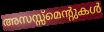
അസസ്സ്മെന്റുകൾ